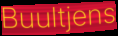
Buultjens